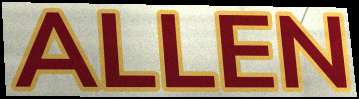
ALLEN